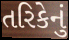
તરિકેનું